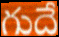
గుదే